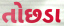
તોછડા